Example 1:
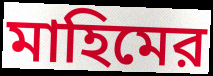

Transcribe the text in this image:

মাহিমের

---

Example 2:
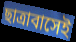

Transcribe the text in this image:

ছাত্রাবাসেই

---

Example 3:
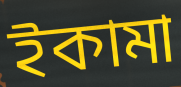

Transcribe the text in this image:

ইকামা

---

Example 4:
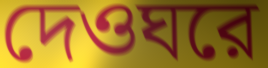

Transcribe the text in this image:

দেওঘরে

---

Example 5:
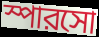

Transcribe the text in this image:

স্পারসো